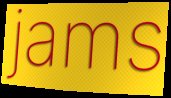
jams